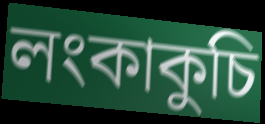
লংকাকুচি